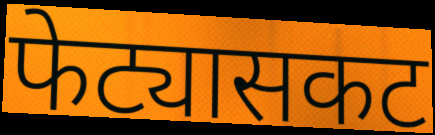
फेट्यासकट